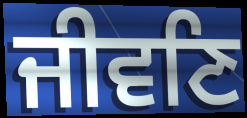
ਜੀਵਣਿ